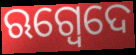
ଋଗ୍ଵେଦେ